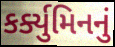
કર્ક્યુમિનનું